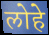
लोहे